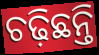
ଚଢ଼ିଛନ୍ତି